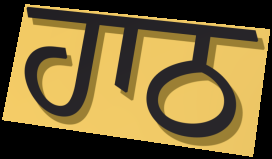
ਹਾਠ